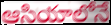
ఆసియాలోనే